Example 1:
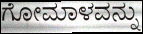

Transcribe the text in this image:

ಗೋಮಾಳವನ್ನು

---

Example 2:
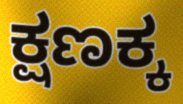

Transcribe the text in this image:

ಕ್ಷಣಕ್ಕ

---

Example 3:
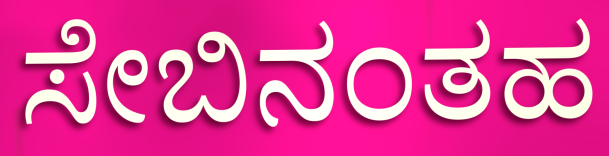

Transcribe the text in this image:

ಸೇಬಿನಂತಹ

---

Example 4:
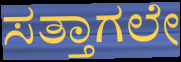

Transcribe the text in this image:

ಸತ್ತಾಗಲೇ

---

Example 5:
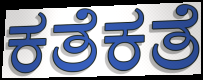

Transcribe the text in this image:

ಕತೆಕತೆ